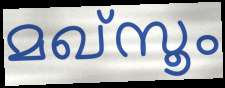
മഖ്സൂം